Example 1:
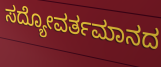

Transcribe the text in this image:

ಸದ್ಯೋವರ್ತಮಾನದ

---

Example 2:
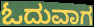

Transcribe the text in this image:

ಓದುವಾಗ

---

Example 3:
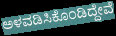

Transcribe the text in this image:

ಅಳವಡಿಸಿಕೊಂಡಿದ್ದೇವೆ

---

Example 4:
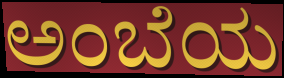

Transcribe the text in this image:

ಅಂಬೆಯ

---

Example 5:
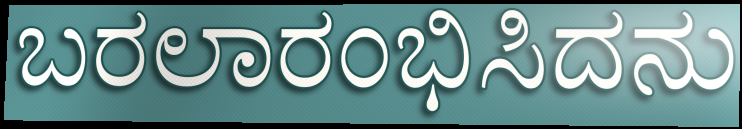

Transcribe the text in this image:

ಬರಲಾರಂಭಿಸಿದನು